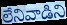
లేనివాడిని